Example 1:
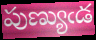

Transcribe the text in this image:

పుణ్యుఁడ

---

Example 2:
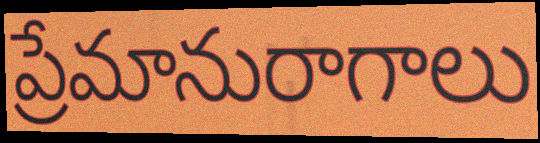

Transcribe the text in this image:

ప్రేమానురాగాలు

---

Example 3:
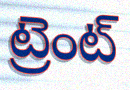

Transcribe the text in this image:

ట్రెంట్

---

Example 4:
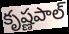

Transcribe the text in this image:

కృష్ణపాల్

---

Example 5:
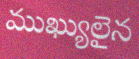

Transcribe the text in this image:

ముఖ్యులైన